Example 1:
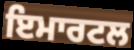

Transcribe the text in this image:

ਇਮਾਰਟਲ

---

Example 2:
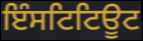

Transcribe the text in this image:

ਇੰਸਟਿਟਿਊਟ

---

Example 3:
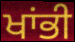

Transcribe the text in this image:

ਖਾਂਭੀ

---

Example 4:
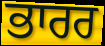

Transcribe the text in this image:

ਭਾਰਰ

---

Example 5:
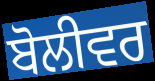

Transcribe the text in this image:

ਬੋਲੀਵਰ